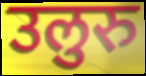
उलुरु